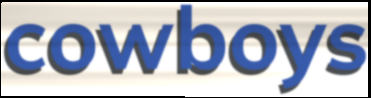
cowboys